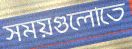
সময়গুলোতে